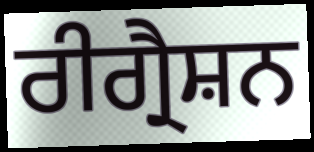
ਰੀਗ੍ਰੈਸ਼ਨ